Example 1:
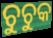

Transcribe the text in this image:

ଚୁଚୁକ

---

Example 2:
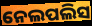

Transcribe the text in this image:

ନେଲପଲିସ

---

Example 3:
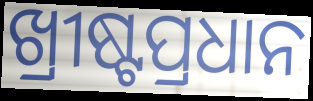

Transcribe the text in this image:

ଖ୍ରୀଷ୍ଟପ୍ରଧାନ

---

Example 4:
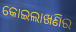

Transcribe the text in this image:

କୋଇଲାଖଣିର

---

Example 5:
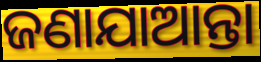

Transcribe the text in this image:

ଜଣାଯାଆନ୍ତା